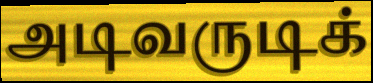
அடிவருடிக்